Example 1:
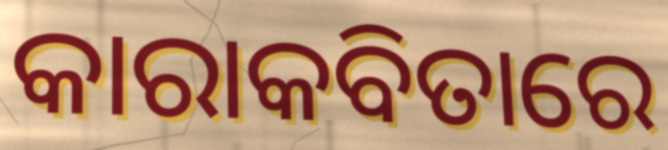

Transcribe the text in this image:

କାରାକବିତାରେ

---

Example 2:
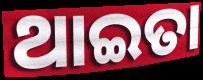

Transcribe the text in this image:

ଥାଇତା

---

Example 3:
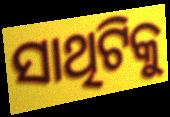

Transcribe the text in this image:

ସାଥିଟିକୁ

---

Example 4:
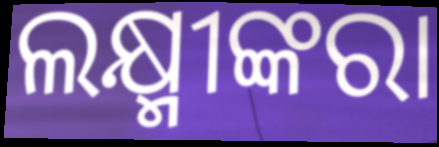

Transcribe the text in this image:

ଲକ୍ଷ୍ମୀଙ୍କରା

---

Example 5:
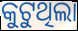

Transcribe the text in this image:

କୁଟୁଥିଲା